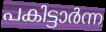
പകിട്ടാർന്ന